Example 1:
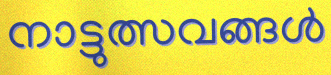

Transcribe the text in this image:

നാട്ടുത്സവങ്ങൾ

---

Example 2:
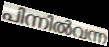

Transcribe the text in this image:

പിന്നിൽവന്ന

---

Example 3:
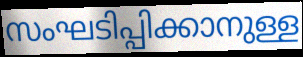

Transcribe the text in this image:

സംഘടിപ്പിക്കാനുള്ള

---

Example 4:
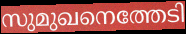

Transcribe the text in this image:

സുമുഖനെത്തേടി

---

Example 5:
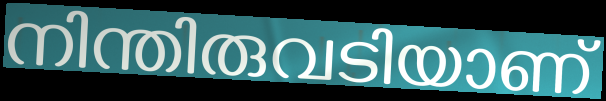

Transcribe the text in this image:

നിന്തിരുവടിയാണ്